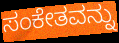
ಸಂಕೇತವನ್ನು